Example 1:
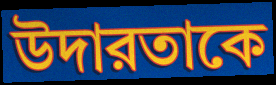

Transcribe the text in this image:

উদারতাকে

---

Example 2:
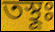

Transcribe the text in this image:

তস্থূঃ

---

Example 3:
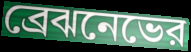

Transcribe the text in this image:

ব্রেঝনেভের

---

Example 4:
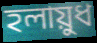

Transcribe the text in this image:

হলায়ুধ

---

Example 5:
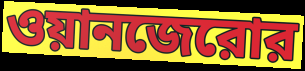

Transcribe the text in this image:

ওয়ানজেরোর